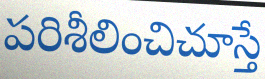
పరిశీలించిచూస్తే